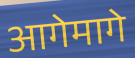
आगेमागे